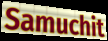
Samuchit